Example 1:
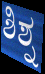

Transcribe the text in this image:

ಶಿಶ್ನ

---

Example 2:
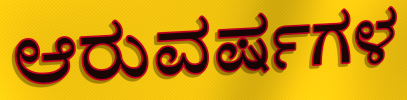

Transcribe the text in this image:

ಆರುವರ್ಷಗಳ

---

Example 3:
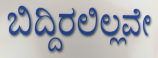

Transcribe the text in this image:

ಬಿದ್ದಿರಲಿಲ್ಲವೇ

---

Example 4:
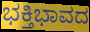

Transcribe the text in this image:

ಭಕ್ತಿಭಾವದ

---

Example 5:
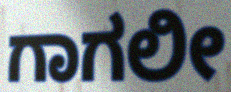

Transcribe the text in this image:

ಗಾಗಲೀ